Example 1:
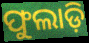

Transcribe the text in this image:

ଫୁଲାଡ଼ି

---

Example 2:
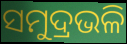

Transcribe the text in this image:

ସମୁଦ୍ରଭଳି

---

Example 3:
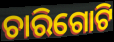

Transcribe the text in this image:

ଚାରିଗୋଟି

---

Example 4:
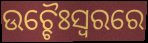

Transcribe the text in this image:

ଉଚ୍ଚୈଃସ୍ୱରରେ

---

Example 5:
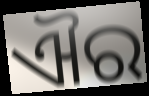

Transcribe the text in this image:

ଐର